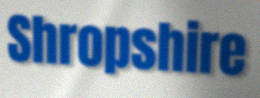
Shropshire